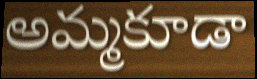
అమ్మకూడా